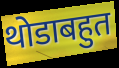
थोडाबहुत